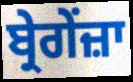
ਬ੍ਰੇਗੇਂਜ਼ਾ